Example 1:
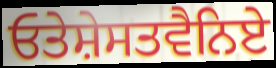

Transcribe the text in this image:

ਓਤੇਸ਼ੇਸਤਵੈਨਿਏ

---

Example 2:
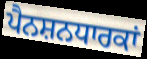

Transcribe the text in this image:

ਪੈਨਸ਼ਨਧਾਰਕਾਂ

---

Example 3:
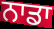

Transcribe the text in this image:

ਨਾਡਾ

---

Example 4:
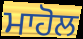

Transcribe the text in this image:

ਮਾਹੋਲ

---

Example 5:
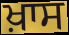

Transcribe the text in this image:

ਖ਼ਾਸ